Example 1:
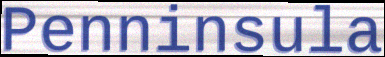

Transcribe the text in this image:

Penninsula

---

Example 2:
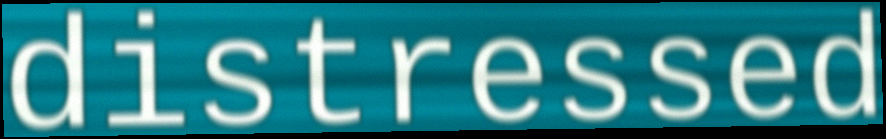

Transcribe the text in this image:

distressed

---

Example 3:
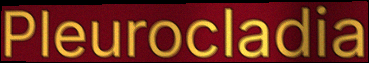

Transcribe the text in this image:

Pleurocladia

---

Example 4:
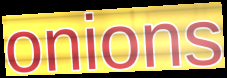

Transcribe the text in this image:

onions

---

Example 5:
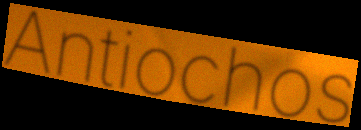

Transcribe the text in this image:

Antiochos